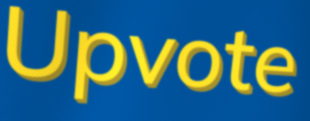
Upvote